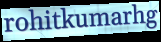
rohitkumarhg